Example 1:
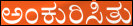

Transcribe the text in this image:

ಅಂಕುರಿಸಿತು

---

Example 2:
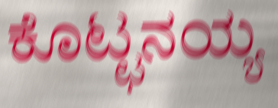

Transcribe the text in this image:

ಕೊಟ್ಟನಯ್ಯ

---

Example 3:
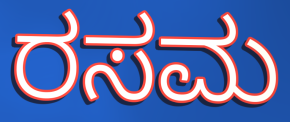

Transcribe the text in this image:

ರಸಮ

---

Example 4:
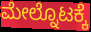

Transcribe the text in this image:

ಮೇಲ್ನೊಟಕ್ಕೆ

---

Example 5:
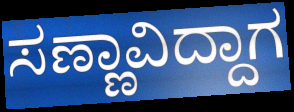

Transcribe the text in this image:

ಸಣ್ಣಾವಿದ್ದಾಗ